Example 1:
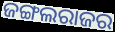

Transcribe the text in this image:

ଜଙ୍ଗଲରାଜର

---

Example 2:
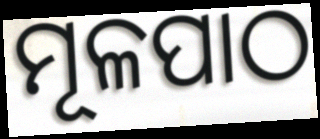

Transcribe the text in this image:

ମୂଳପାଠ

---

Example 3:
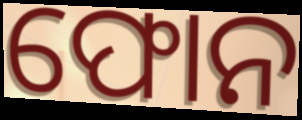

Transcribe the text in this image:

ଫୋନ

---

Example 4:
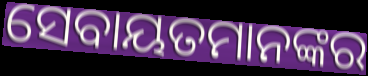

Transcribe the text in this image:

ସେବାୟତମାନଙ୍କର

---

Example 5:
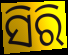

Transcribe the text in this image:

ସିରି